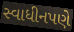
સ્વાધીનપણે